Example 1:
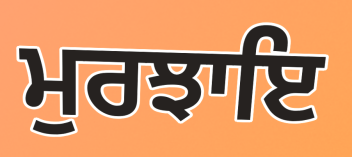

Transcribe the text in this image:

ਮੁਰਝਾਇ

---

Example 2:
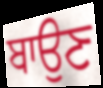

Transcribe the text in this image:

ਬਾਉਣ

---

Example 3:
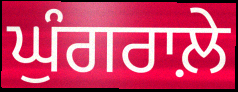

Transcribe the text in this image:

ਘੁੰਗਰਾਲ਼ੇ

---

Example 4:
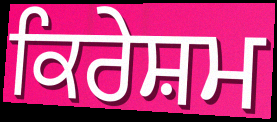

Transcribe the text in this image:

ਕਿਰੇਸ਼ਮ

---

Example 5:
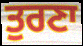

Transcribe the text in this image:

ਤੁਰਣਾ